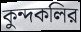
কুন্দকলির